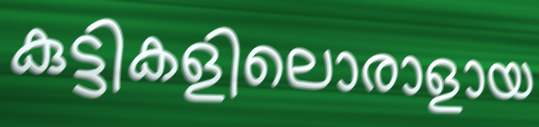
കുട്ടികളിലൊരാളായ